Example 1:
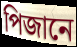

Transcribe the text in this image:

পিজানে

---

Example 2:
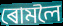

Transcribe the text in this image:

ৰোমলৈ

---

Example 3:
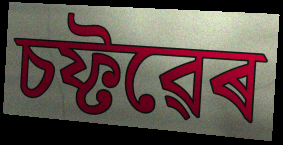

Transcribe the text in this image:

চফ্টৱেৰ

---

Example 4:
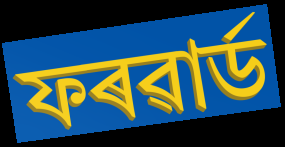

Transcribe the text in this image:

ফৰৱাৰ্ড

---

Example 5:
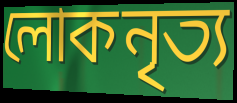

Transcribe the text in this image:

লোকনৃত্য